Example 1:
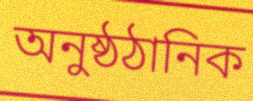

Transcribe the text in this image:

অনুষ্ঠঠানিক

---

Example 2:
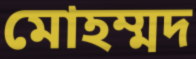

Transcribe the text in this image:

মোহম্মদ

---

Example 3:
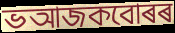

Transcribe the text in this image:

ভআজকবোৰৰ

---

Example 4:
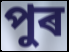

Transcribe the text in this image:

পুৰ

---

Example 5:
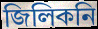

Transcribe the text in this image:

জিলিকনি